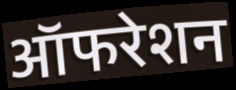
ऑफरेशन